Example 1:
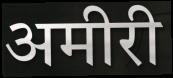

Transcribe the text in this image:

अमीरी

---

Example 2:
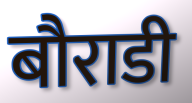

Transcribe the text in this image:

बौराडी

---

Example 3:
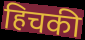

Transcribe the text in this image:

हिचकी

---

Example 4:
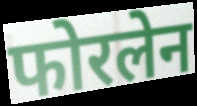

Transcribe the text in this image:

फोरलेन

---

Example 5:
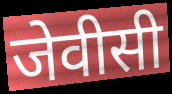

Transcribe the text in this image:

जेवीसी